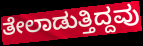
ತೇಲಾಡುತ್ತಿದ್ದವು